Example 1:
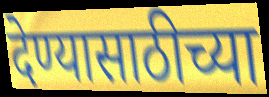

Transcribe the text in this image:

देण्यासाठीच्या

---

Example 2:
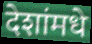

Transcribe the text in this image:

देशांमधे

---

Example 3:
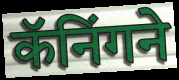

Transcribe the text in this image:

कॅनिंगने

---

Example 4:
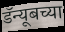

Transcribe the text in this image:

डॅन्यूबच्या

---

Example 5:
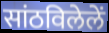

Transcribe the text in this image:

सांठविलेलें